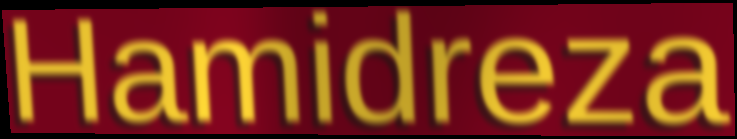
Hamidreza